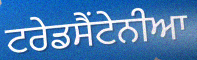
ਟਰੇਡਸੈਂਟੇਨੀਆ